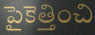
పైకెత్తించి